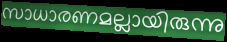
സാധാരണമല്ലായിരുന്നു